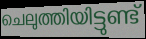
ചെലുത്തിയിട്ടുണ്ട്